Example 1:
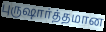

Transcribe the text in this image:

புருஷார்த்தமான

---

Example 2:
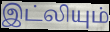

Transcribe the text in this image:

இட்லியும்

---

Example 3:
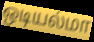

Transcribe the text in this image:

ஒடியல்மா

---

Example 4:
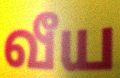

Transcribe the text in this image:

வீய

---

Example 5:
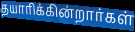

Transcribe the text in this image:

தயாரிக்கின்றார்கள்